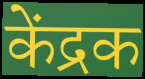
केंद्रक